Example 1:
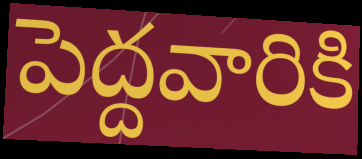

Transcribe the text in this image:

పెద్దవారికి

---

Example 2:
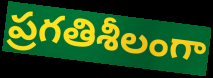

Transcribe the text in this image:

ప్రగతిశీలంగా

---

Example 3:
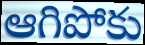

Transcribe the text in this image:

ఆగిపోకు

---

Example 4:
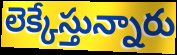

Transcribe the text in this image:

లెక్కేస్తున్నారు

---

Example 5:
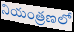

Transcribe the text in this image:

నియంత్రణలో